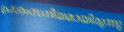
പ്രശംസനീയമായിരുന്നു